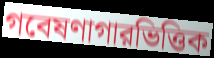
গবেষণাগারভিত্তিক